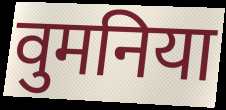
वुमनिया